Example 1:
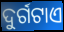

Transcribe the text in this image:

ଦୁର୍ଗଟାଏ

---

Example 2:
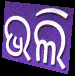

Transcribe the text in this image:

ଭଲି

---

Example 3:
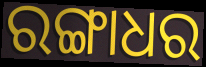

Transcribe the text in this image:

ରଙ୍ଗାଧର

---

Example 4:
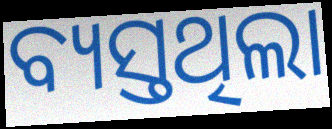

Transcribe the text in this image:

ବ୍ୟସ୍ତଥିଲା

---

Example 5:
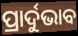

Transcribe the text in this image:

ପ୍ରାର୍ଦୁଭାବ